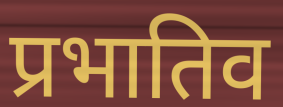
प्रभातिव